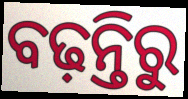
ବଢ଼ନ୍ତିରୁ